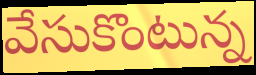
వేసుకొంటున్న